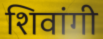
शिवांगी